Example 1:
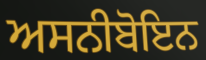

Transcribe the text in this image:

ਅਸਨੀਬੋਇਨ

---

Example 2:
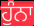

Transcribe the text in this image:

ਹੁੰਨਾ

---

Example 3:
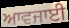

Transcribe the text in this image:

ਆਵਜਾਈ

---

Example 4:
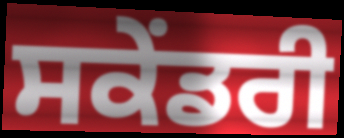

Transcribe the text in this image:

ਸਕੇਂਡਰੀ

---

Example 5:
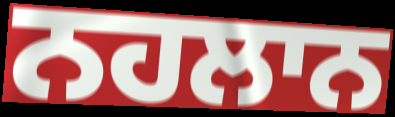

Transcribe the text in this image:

ਨਹਲਾਨ